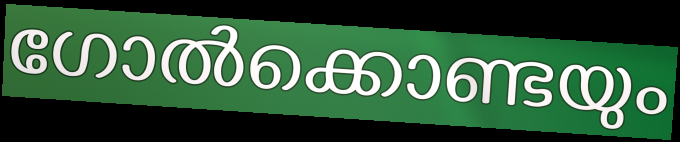
ഗോൽക്കൊണ്ടയും